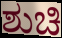
ಶುಚಿ